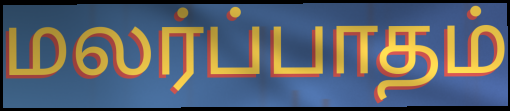
மலர்ப்பாதம்